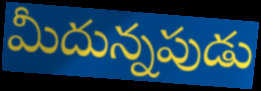
మీదున్నపుడు